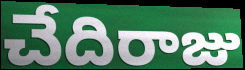
చేదిరాజు